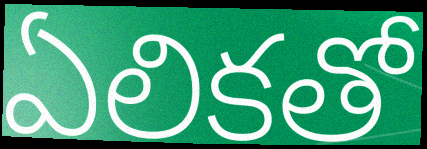
ఏలికతో